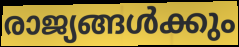
രാജ്യങ്ങൾക്കും